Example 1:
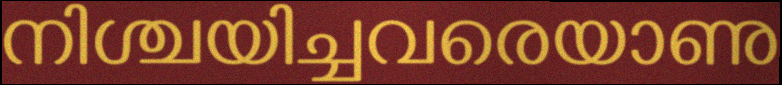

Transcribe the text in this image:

നിശ്ചയിച്ചവരെയാണു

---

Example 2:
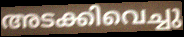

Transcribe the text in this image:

അടക്കിവെച്ചു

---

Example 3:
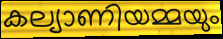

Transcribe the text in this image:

കല്യാണിയമ്മയും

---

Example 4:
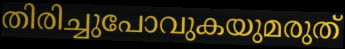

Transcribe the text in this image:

തിരിച്ചുപോവുകയുമരുത്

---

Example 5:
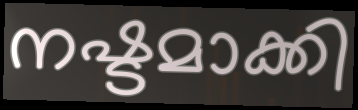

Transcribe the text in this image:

നഷ്ടമാക്കി